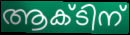
ആക്ടിന്